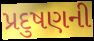
પ્રદુષણની